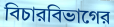
বিচারবিভাগের